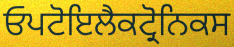
ਓਪਟੋਇਲੈਕਟ੍ਰੋਨਿਕਸ